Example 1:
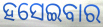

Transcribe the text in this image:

ହସେଇବାର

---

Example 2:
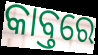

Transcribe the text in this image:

କାବ୍ତରେ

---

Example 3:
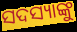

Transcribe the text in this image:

ସଦସ୍ୟାଙ୍କୁ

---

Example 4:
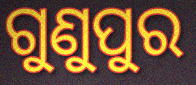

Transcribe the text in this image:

ଗୁଣୁପୁର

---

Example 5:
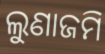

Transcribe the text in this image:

ଲୁଣାଜମି